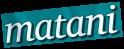
matani